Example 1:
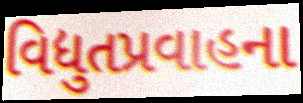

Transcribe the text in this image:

વિદ્યુતપ્રવાહના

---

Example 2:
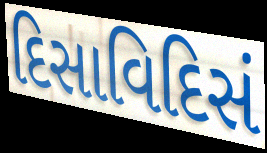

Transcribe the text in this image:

દિસાવિદિસં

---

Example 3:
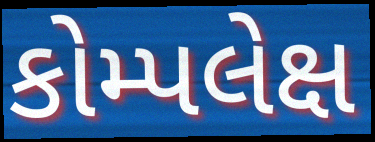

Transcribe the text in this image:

કોમ્પલેક્ષ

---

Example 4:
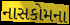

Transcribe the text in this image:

નાસકોમના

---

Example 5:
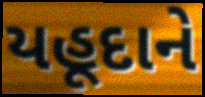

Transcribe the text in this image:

યહૂદાને